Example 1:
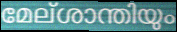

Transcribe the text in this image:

മേല്ശാന്തിയും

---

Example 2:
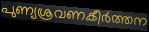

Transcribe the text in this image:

പുണ്യശ്രവണകീർത്തന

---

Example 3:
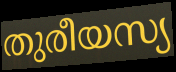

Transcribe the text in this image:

തുരീയസ്യ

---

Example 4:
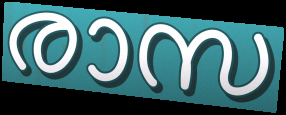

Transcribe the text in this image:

രാസ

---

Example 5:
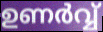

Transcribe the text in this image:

ഉണർവ്വ്